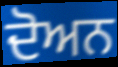
ਦੋਅਨ